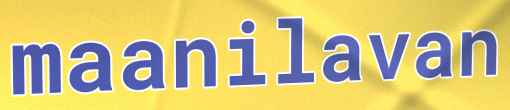
maanilavan